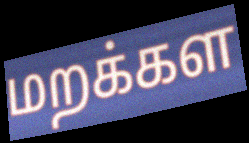
மறக்கள